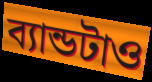
ব্যান্ডটাও